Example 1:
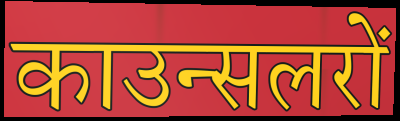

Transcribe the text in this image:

काउन्सलरों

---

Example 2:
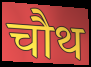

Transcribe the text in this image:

चौथ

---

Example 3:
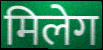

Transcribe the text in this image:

मिलेग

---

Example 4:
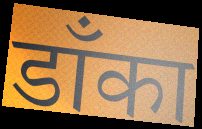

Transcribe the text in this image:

डाँका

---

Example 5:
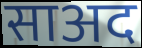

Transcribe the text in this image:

साअद